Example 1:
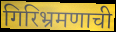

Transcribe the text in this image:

गिरिभ्रमणाची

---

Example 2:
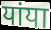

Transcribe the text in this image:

यांया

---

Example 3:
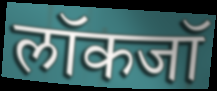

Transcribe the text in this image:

लॉकजॉ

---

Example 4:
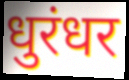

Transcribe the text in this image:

धुरंधर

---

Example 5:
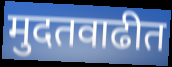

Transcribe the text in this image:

मुदतवाढीत